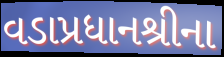
વડાપ્રધાનશ્રીના